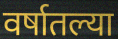
वर्षातल्या